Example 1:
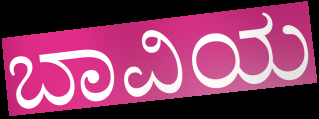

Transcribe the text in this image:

ಬಾವಿಯ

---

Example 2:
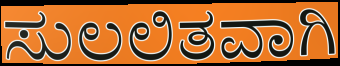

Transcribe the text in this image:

ಸುಲಲಿತವಾಗಿ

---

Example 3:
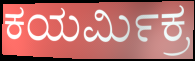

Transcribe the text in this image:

ಕಯರ್ಮಿಕ್ರ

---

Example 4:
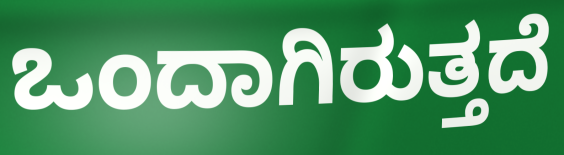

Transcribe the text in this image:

ಒಂದಾಗಿರುತ್ತದೆ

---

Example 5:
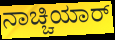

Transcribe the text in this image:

ನಾಚ್ಚಿಯಾರ್